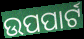
ଉପପାର୍ଟ